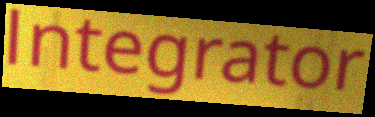
Integrator